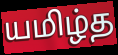
யமிழ்த